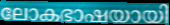
ലോകഭാഷയായി